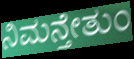
ನಿಮನ್ತೇತುಂ